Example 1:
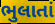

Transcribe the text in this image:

ભુલાતાં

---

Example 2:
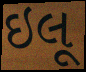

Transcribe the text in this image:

ઇલૂ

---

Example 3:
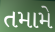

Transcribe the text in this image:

તમામે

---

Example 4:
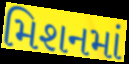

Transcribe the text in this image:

મિશનમાં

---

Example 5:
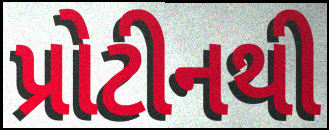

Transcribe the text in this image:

પ્રોટીનથી